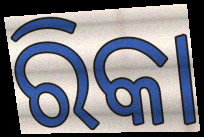
ରିକା